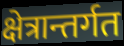
क्षेत्रान्‍तर्गत